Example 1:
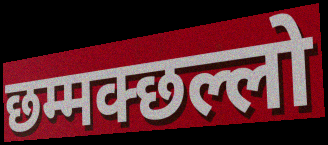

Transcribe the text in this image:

छम्मक्छल्लो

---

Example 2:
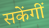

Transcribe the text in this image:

सकेंगीं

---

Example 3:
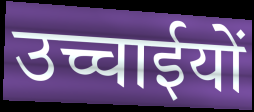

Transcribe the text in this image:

उच्चाईयों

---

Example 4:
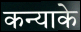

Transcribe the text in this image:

कन्याके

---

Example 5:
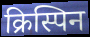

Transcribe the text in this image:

क्रिस्पिन